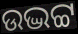
ଉଦ୍ଭଟ୍ଟ